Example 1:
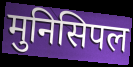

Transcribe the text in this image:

मुनिसिपल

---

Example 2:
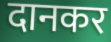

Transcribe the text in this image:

दानकर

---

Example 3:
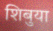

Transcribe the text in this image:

शिबुया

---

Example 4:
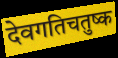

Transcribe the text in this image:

देवगतिचतुष्क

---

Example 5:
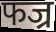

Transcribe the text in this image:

फज्र